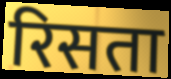
रिसता